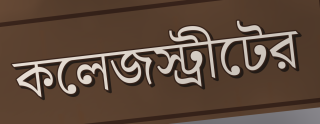
কলেজস্ট্রীটের